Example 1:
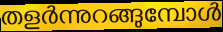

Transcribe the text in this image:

തളർന്നുറങ്ങുമ്പോൾ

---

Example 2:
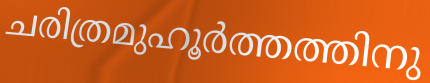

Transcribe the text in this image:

ചരിത്രമുഹൂർത്തത്തിനു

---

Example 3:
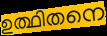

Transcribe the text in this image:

ഉത്ഥിതനെ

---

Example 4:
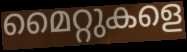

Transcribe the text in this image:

മൈറ്റുകളെ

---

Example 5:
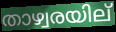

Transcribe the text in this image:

താഴ്വരയില്